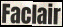
Faclair